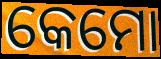
କେମୋ